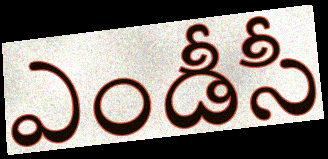
ఎండీసీ